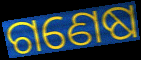
ଗଣେଷ